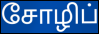
சோழிப்